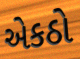
એકઠો